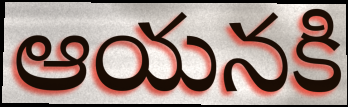
ఆయనకి